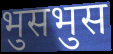
भुसभुस